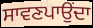
ਸਾਵਣਪਾਉਂਦਾ